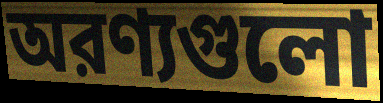
অরণ্যগুলো